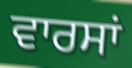
ਵਾਰਸਾਂ